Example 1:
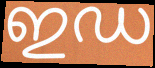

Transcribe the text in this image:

ഇഡ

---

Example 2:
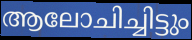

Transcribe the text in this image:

ആലോചിച്ചിട്ടും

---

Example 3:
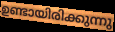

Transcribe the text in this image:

ഉണ്ടായിരിക്കുന്നു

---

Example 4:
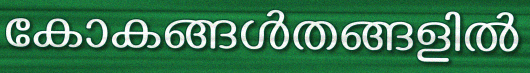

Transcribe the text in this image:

കോകങ്ങൾതങ്ങളിൽ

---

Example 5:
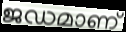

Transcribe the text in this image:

ജഡമാണ്